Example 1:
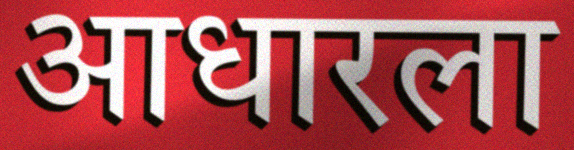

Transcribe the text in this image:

आधारला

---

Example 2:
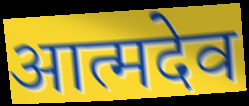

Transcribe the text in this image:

आत्मदेव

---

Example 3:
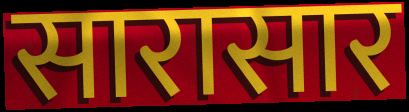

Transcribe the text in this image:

सारासार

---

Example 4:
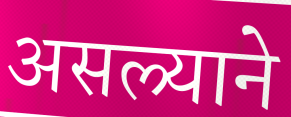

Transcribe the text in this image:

असल्याने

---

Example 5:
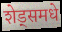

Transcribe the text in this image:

शेड्समधे